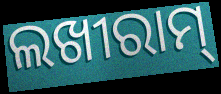
ଲଖୀରାମ୍